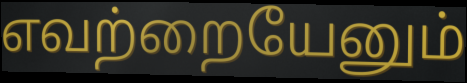
எவற்றையேனும்